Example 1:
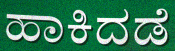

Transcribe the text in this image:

ಹಾಕಿದಡೆ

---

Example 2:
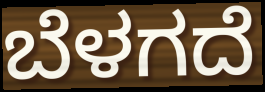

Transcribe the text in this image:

ಬೆಳಗದೆ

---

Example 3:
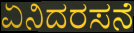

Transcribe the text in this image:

ಏನಿದರಸನೆ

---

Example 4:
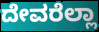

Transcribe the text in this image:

ದೇವರೆಲ್ಲಾ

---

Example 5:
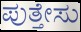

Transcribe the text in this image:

ಪುತ್ತೇಸು